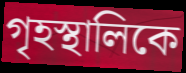
গৃহস্থালিকে